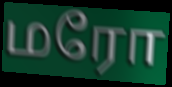
மரோ